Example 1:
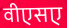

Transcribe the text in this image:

वीएसए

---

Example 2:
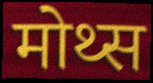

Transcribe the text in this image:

मोथ्स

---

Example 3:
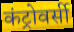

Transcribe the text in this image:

कंट्रोवर्सी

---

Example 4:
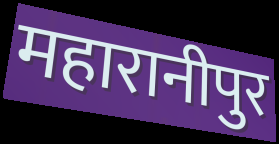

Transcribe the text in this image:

महारानीपुर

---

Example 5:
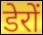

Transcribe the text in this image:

डेरों